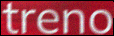
treno